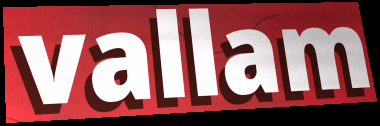
vallam